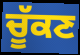
ਚੂੱਕਣ